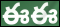
ఈఈ